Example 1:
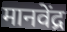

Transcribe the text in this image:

मानवेंद्र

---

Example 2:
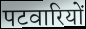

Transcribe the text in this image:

पटवारियों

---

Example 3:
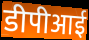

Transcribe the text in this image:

डीपीआई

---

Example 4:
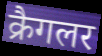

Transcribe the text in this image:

क्रैगलर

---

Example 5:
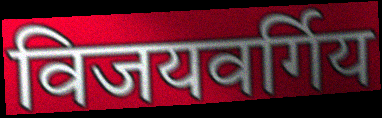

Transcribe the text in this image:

विजयवर्गिय